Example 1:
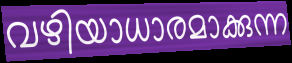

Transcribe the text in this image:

വഴിയാധാരമാക്കുന്ന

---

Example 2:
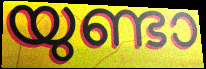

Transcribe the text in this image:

യുണ്ടാ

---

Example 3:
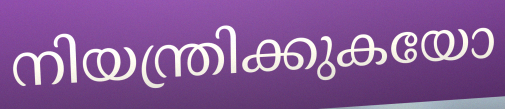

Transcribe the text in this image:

നിയന്ത്രിക്കുകയോ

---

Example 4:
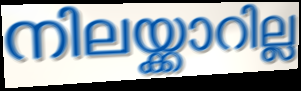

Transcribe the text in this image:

നിലയ്ക്കാറില്ല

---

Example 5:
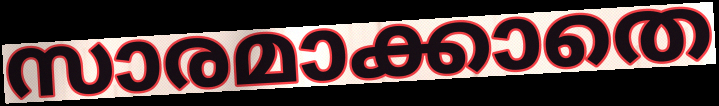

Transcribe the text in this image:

സാരമാക്കാതെ